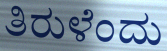
ತಿರುಳೆಂದು